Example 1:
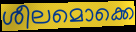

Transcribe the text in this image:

ശീലമൊക്കെ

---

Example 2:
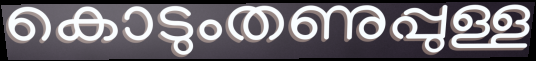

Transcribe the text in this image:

കൊടുംതണുപ്പുള്ള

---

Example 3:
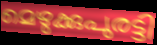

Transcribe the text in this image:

മെഴുക്കുപുരട്ടി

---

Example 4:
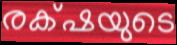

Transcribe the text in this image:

രക്‌ഷയുടെ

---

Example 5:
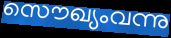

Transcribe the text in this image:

സൌഖ്യംവന്നു